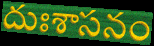
దుఃశాసనం